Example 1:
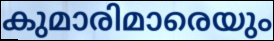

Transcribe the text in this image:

കുമാരിമാരെയും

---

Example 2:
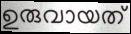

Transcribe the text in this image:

ഉരുവായത്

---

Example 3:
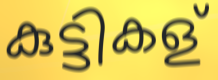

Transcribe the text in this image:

കുട്ടികള്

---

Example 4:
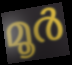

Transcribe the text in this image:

മൂർ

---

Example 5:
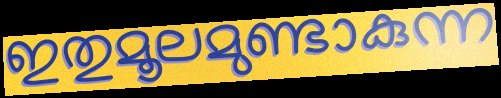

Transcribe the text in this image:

ഇതുമൂലമുണ്ടാകുന്ന